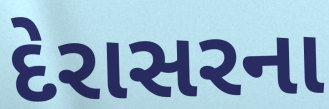
દેરાસરના